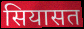
सियासत